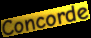
Concorde